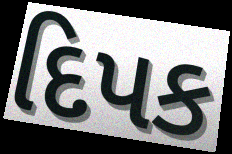
દિપક